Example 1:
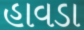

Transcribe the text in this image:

હાવડા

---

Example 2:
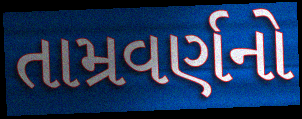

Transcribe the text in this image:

તામ્રવર્ણનો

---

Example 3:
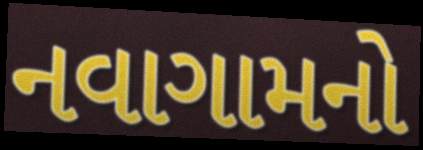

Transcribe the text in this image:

નવાગામનો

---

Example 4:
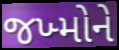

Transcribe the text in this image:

જખ્મોને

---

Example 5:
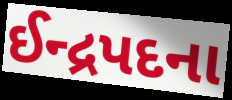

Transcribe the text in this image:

ઈન્દ્રપદના